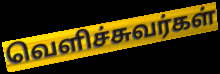
வெளிச்சுவர்கள்